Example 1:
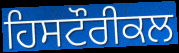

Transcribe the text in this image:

ਹਿਸਟੌਰੀਕਲ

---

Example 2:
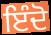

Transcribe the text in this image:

ਇੰਦੋ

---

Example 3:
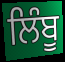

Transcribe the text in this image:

ਲਿੰਬੂ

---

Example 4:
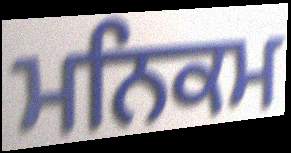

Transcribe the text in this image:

ਮਨਿਕਮ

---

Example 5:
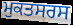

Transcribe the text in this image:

ਮੁਕਤਸਰਸ